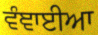
ਵੰਞਾਈਆ